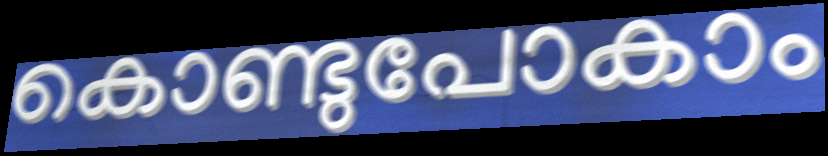
കൊണ്ടുപോകാം